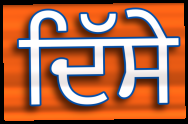
ਦਿੱਸੇ